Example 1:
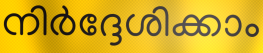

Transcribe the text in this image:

നിർദ്ദേശിക്കാം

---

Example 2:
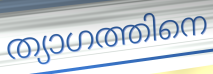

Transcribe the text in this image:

ത്യാഗത്തിനെ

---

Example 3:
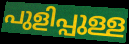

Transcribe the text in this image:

പുളിപ്പുള്ള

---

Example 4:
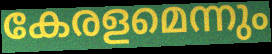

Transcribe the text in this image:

കേരളമെന്നും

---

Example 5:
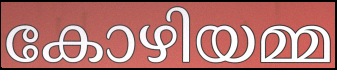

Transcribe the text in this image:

കോഴിയമ്മ